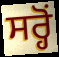
ਸਰ੍ਹੋਂ